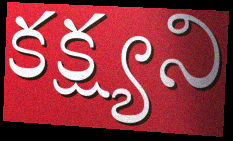
కక్ష్యని